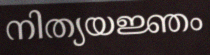
നിത്യയജ്ഞം